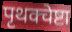
पृथक्चेष्टा